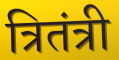
त्रितंत्री